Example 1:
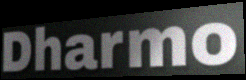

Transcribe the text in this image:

Dharmo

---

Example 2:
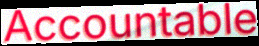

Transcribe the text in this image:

Accountable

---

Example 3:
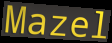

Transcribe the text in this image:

Mazel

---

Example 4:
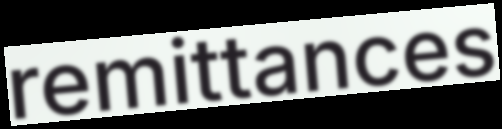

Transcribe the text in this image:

remittances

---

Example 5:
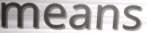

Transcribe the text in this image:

means